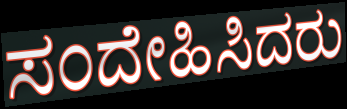
ಸಂದೇಹಿಸಿದರು